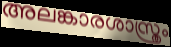
അലങ്കാരശാസ്ത്രം